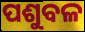
ପଶୁବଳ